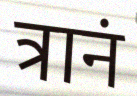
त्रानं